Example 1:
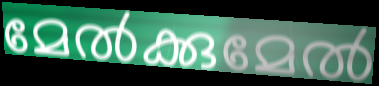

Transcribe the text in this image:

മേൽക്കുമേൽ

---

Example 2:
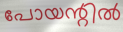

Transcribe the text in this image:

പോയന്റിൽ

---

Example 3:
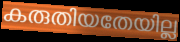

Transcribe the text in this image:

കരുതിയതേയില്ല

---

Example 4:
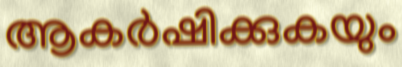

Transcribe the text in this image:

ആകർഷിക്കുകയും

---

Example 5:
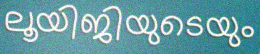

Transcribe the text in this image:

ലൂയിജിയുടെയും